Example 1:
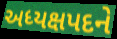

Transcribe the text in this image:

અધ્યક્ષપદને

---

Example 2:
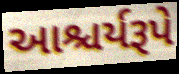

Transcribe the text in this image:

આશ્ચર્યરૂપે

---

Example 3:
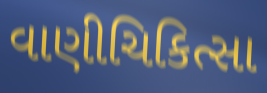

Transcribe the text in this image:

વાણીચિકિત્સા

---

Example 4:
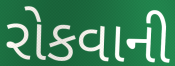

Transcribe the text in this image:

રોકવાની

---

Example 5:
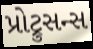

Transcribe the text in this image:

પ્રોટ્રુસન્સ